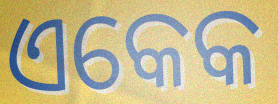
ଏକେକ